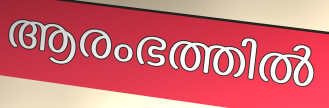
ആരംഭത്തിൽ